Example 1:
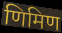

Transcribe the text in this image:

णिमिण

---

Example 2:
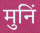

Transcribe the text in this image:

मुनिं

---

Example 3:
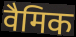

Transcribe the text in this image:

वैमिक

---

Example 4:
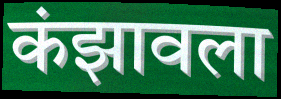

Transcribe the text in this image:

कंझावला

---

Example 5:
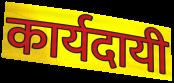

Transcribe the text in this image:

कार्यदायी